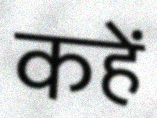
कहें